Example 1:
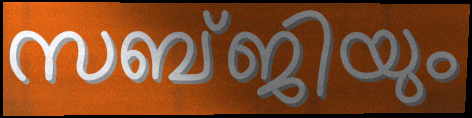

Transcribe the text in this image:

സബ്ജിയും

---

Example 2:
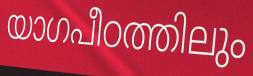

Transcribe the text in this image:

യാഗപീഠത്തിലും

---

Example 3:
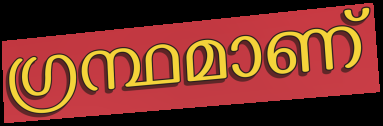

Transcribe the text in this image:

ഗ്രന്ഥമാണ്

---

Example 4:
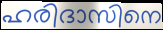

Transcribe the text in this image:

ഹരിദാസിനെ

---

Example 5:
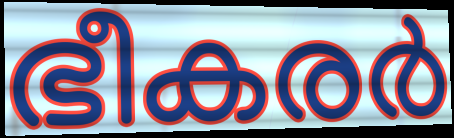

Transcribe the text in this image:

ഭീകരർ